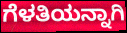
ಗೆಳತಿಯನ್ನಾಗಿ